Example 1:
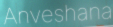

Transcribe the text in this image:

Anveshana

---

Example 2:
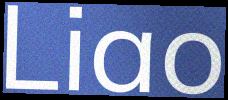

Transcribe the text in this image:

Liao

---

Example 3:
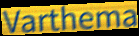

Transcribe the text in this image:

Varthema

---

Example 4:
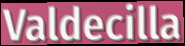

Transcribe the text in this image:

Valdecilla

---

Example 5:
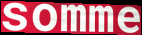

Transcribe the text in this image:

somme